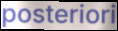
posteriori